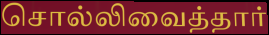
சொல்லிவைத்தார்